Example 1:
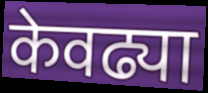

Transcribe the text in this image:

केवढ्या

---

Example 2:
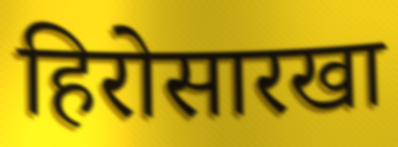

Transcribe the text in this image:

हिरोसारखा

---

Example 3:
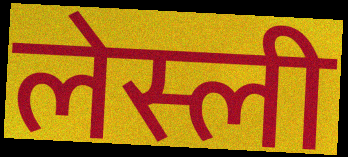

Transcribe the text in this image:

लेस्ली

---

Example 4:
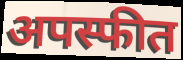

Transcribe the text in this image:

अपस्फीत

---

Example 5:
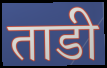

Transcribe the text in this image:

ताडी